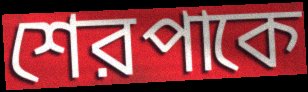
শেরপাকে